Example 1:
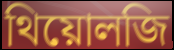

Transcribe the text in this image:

থিয়োলজি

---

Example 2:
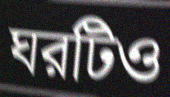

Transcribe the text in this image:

ঘরটিও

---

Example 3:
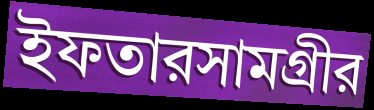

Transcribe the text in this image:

ইফতারসামগ্রীর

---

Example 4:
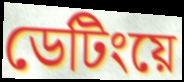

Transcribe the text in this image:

ডেটিংয়ে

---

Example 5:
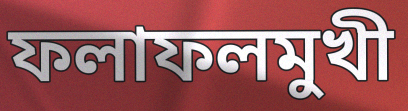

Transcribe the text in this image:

ফলাফলমুখী